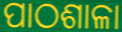
ପାଠଶାଳା